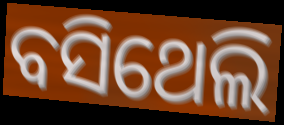
ବସିଥେଲି